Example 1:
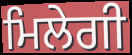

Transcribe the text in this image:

ਮਿਲੇਗੀ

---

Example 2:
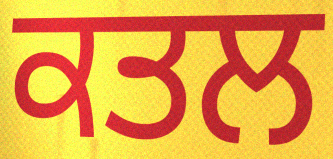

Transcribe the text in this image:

ਕਤਲ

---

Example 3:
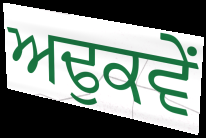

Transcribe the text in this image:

ਅਢੁਕਵੇਂ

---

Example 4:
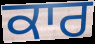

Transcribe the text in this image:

ਕਾਰ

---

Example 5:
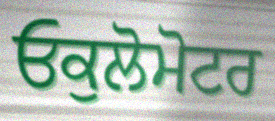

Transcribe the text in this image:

ਓਕੁਲੋਮੋਟਰ